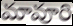
మావూరి